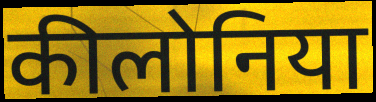
कीलोनिया